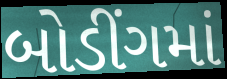
બોડીંગમાં